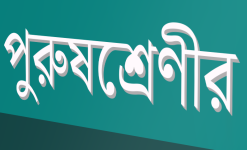
পুরুষশ্রেণীর